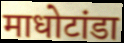
माधोटांडा